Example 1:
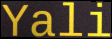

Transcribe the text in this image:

Yali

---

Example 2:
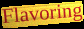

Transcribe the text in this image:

Flavoring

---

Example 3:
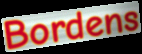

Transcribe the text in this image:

Bordens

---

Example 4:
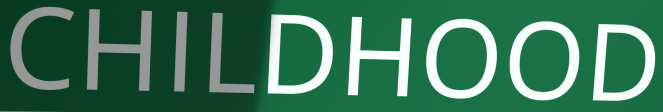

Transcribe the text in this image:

CHILDHOOD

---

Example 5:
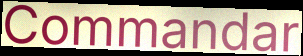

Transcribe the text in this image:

Commandar